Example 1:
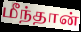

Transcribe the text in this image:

மீந்தான்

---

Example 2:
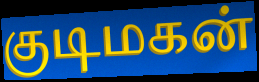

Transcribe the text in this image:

குடிமகன்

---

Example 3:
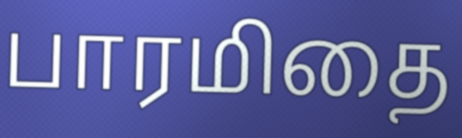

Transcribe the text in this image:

பாரமிதை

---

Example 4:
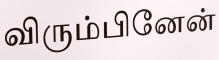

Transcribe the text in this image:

விரும்பினேன்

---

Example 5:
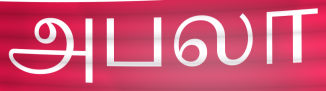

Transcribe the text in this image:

அபலா